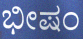
ಭೀಷಂ